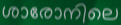
ശാരോനിലെ